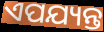
ଏପଯ୍ୟନ୍ତ